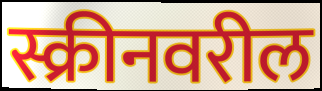
स्क्रीनवरील